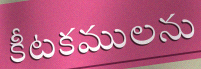
కీటకములను